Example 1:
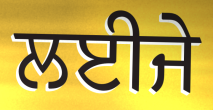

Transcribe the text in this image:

ਲਈਜੇ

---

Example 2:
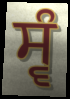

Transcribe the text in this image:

ਸ੍ਵੰ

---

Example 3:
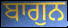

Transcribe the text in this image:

ਬਾਗੁਨ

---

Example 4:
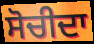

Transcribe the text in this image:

ਸੋਚੀਦਾ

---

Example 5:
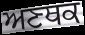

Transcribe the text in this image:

ਅਣਥਕ